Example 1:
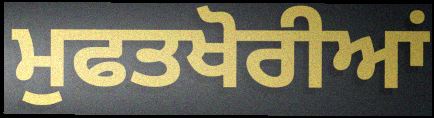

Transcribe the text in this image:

ਮੁਫਤਖੋਰੀਆਂ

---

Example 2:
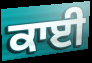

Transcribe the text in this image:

ਕਾਈ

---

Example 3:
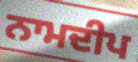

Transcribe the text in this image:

ਨਾਮਦੀਪ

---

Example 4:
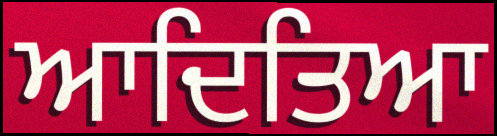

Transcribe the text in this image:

ਆਦਿਤਿਆ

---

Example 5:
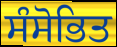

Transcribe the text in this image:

ਸੰਸੋਭਿਤ